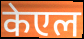
केएल